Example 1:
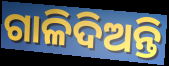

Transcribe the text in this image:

ଗାଳିଦିଅନ୍ତି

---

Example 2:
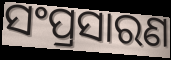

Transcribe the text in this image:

ସଂପ୍ରସାରଣ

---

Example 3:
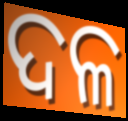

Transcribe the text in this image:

ଦଳ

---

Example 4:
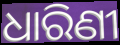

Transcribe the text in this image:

ଧାରିଣୀ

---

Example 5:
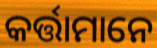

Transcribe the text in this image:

କର୍ତ୍ତାମାନେ